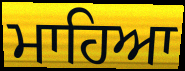
ਮਾਹਿਆ